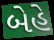
બેહે